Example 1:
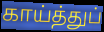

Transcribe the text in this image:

காய்த்துப்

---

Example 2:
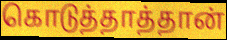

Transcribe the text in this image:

கொடுத்தாத்தான்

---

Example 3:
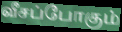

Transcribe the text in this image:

வீசப்போகும்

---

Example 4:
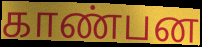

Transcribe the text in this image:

காண்பன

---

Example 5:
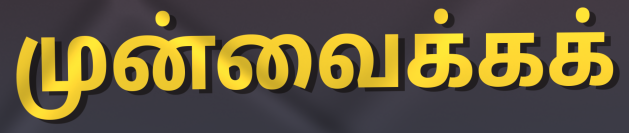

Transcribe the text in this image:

முன்வைக்கக்